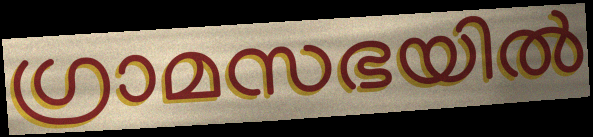
ഗ്രാമസഭയിൽ